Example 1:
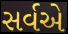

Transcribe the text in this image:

સર્વએ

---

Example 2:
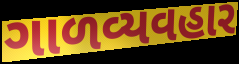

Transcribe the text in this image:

ગાળવ્યવહાર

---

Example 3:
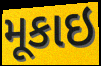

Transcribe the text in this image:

મૂકાઇ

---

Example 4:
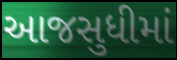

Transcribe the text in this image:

આજસુધીમાં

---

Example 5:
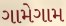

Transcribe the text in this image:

ગામેગામ